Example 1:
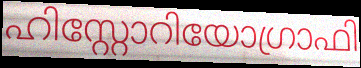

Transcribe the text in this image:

ഹിസ്റ്റോറിയോഗ്രാഫി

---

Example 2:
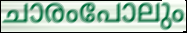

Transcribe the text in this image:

ചാരംപോലും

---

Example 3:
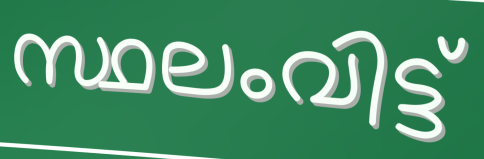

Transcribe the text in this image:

സ്ഥലംവിട്ട്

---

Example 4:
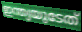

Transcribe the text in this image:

ഇന്ത്യയുടേത്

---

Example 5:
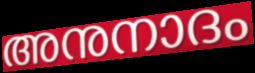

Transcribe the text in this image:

അനുനാദം